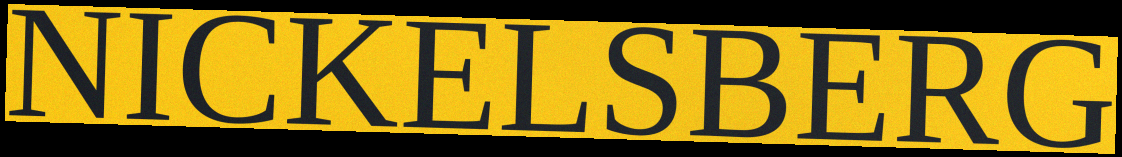
NICKELSBERG